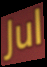
Jul